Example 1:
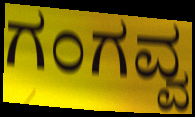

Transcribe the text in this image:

ಗಂಗವ್ವ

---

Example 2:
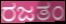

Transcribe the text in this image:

ರಜತಂ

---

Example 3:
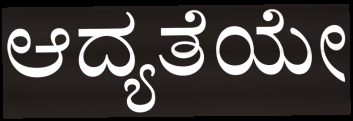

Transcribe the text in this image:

ಆದ್ಯತೆಯೇ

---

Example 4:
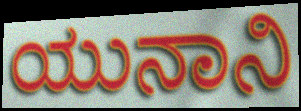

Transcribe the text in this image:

ಯುನಾನಿ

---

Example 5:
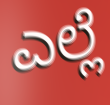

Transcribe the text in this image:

ಎಲ್ಲೆ